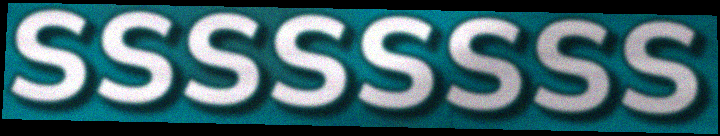
ssssssss